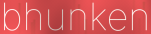
bhunken